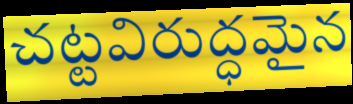
చట్టవిరుద్ధమైన